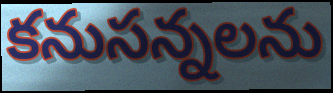
కనుసన్నలను